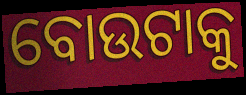
ବୋଉଟାକୁ